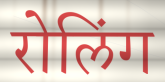
रोलिंग